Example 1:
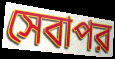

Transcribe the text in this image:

সেবাপর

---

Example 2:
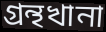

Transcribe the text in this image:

গ্রন্থখানা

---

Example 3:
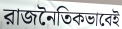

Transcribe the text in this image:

রাজনৈতিকভাবেই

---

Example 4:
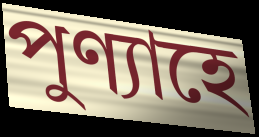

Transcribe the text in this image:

পুণ্যাহে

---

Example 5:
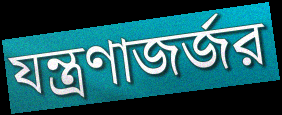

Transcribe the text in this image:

যন্ত্রণাজর্জর